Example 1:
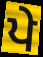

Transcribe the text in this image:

ਪੇ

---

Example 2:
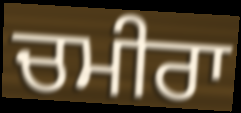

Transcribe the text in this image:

ਚਮੀਰਾ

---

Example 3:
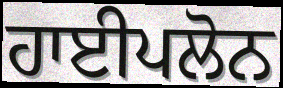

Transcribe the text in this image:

ਹਾਈਪਲੋਨ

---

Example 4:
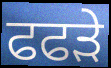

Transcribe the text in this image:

ਫਫੜੇ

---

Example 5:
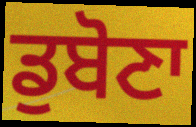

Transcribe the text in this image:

ਡੁਬੋਣਾ